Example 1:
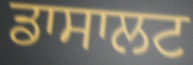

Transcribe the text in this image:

ਡਾਸਾਲਟ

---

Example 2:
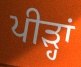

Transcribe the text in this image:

ਪੀੜ੍ਹਾਂ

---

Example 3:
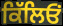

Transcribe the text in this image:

ਕਿੱਲਿਓਂ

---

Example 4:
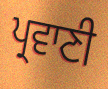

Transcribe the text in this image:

ਪ੍ਰਵਾਣੀ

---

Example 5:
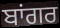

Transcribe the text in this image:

ਬਾਂਗਰ